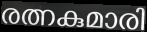
രത്നകുമാരി